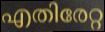
എതിരേറ്റ